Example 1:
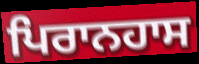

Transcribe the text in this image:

ਪਿਰਾਨਹਾਸ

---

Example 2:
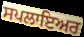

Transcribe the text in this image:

ਸਪਲਾਇਅਰ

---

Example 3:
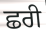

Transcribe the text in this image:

ਛਰੀ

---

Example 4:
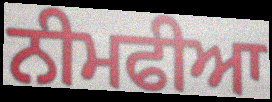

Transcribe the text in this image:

ਨੀਮਫੀਆ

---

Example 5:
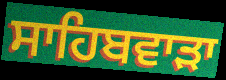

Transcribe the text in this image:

ਸਾਹਿਬਵਾੜਾ